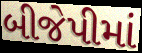
બીજેપીમાં